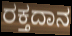
ರಕ್ತದಾನ